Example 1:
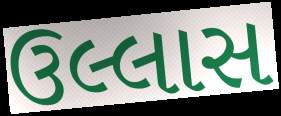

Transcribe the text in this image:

ઉલ્લાસ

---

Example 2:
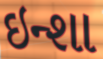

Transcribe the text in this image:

ઇન્શા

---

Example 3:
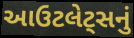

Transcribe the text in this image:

આઉટલેટ્સનું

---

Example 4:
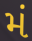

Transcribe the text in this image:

મં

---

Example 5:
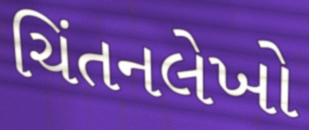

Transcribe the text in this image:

ચિંતનલેખો